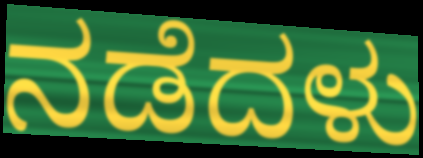
ನಡೆದಳು